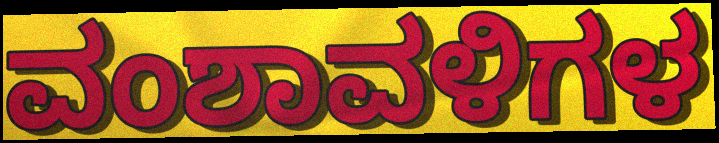
ವಂಶಾವಳಿಗಳ